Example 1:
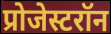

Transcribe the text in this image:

प्रोजेस्टरॉन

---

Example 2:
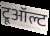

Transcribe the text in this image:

ट्रूऑल्ट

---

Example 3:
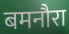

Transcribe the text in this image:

बमनौरा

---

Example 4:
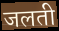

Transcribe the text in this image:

जलती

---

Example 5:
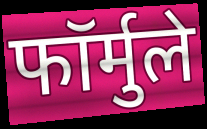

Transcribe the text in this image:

फॉर्मुले